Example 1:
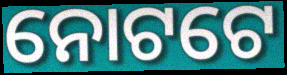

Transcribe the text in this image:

ନୋଟଟେ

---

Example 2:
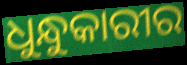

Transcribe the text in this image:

ଧୁନ୍ଧୁକାରୀର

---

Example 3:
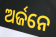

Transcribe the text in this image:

ଅର୍ଜନେ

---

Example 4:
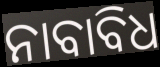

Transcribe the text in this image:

ନାବାବିଧ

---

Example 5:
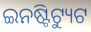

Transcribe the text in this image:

ଇନଷ୍ଟିଟ୍ୟୁଟ